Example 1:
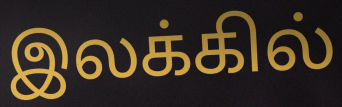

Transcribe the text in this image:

இலக்கில்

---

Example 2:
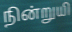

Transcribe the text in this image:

நின்றுயி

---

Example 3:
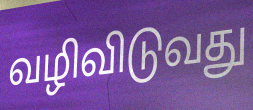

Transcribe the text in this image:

வழிவிடுவது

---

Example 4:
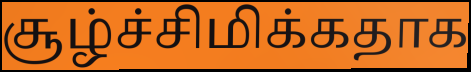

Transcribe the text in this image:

சூழ்ச்சிமிக்கதாக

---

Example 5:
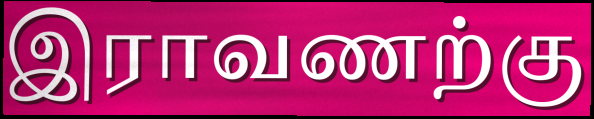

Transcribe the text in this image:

இராவணற்கு